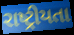
રાષ્ટ્રીયતા